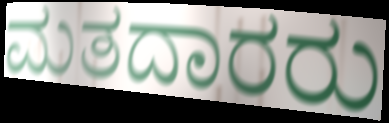
ಮತದಾರರು